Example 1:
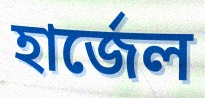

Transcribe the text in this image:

হার্জেল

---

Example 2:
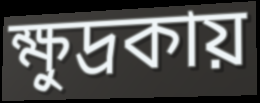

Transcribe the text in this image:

ক্ষুদ্রকায়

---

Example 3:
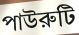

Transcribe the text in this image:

পাউরুটি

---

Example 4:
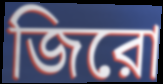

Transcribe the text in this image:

জিরো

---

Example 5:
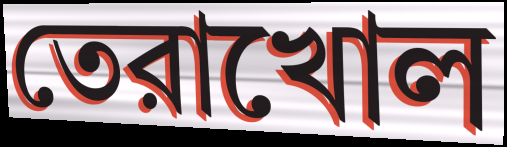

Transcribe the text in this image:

তেরাখোল